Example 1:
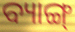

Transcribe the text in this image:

ବ୍ୟାଙ୍ଗ୍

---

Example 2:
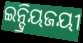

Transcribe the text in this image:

ଇନ୍ଦ୍ରିୟଜୟୀ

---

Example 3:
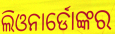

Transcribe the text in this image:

ଲିଓନାର୍ଡୋଙ୍କର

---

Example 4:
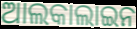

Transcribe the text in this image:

ଆଲକାଲାଇନ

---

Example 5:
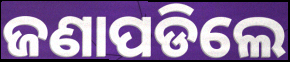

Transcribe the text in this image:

ଜଣାପଡିଲେ